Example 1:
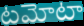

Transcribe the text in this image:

టమోటా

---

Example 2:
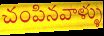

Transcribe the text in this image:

చంపినవాళ్ళు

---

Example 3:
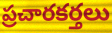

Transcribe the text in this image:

ప్రచారకర్తలు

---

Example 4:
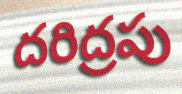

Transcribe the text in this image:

దరిద్రపు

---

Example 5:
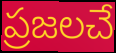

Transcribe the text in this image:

ప్రజలచే